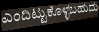
ಎಂದಿಟ್ಟುಕೊಳ್ಳಬಹುದು